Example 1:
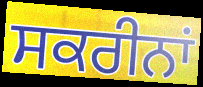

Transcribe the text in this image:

ਸਕਰੀਨਾਂ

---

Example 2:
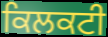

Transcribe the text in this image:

ਕਿਲਕਟੀ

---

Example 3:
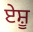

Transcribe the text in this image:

ਏਸ਼ੂ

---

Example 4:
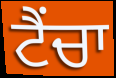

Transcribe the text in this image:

ਟੈਂਚਾ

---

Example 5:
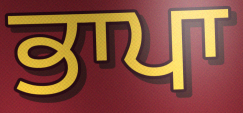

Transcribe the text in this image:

ਭਾਪਾ